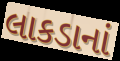
લાકડાનાં